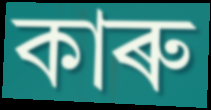
কাৰু